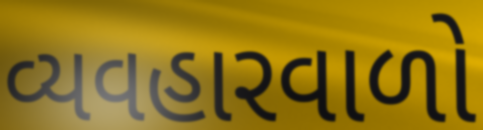
વ્યવહારવાળો